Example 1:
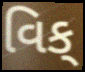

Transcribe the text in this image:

વિક્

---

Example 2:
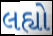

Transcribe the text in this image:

લહ્યો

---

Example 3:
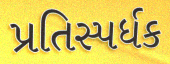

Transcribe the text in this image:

પ્રતિસ્પર્ધક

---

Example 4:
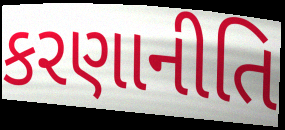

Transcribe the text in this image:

કરણાનીતિ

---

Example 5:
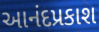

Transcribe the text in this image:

આનંદપ્રકાશ